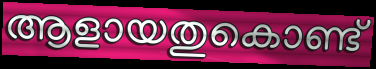
ആളായതുകൊണ്ട്